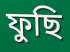
ফুছি